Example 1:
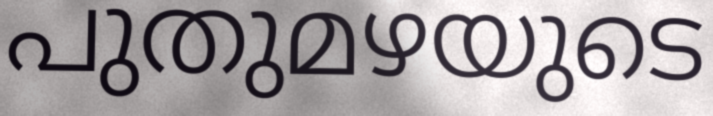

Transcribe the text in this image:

പുതുമഴയുടെ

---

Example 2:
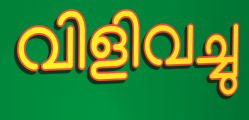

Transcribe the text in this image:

വിളിവച്ചു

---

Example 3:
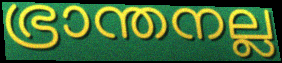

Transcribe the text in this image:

ഭ്രാന്തനല്ല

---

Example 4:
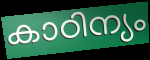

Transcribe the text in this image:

കാഠിന്യം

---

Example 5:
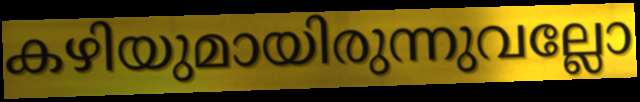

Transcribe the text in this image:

കഴിയുമായിരുന്നുവല്ലോ